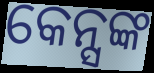
କେନ୍ସଙ୍କ